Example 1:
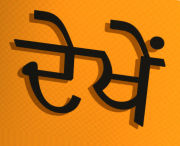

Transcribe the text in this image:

ਦੇਖੇਂ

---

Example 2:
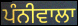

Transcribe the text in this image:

ਪੰਨੀਵਾਲਾ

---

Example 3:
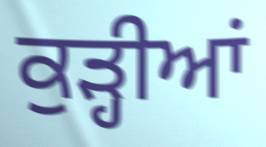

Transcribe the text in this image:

ਕੁੜ੍ਹੀਆਂ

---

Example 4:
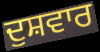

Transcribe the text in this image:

ਦੁਸ਼ਵਾਰ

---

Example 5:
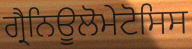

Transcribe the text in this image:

ਗ੍ਰੈਨਿਊਲੋਮੇਟੋਸਿਸ